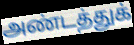
அண்டத்துக்